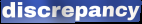
discrepancy